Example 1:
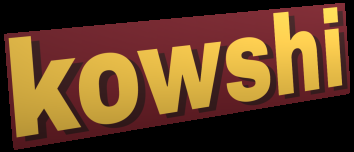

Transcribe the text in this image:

kowshi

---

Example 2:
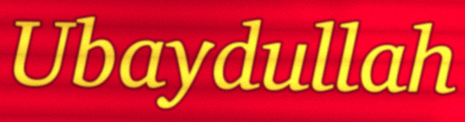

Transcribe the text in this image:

Ubaydullah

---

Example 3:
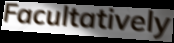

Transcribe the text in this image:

Facultatively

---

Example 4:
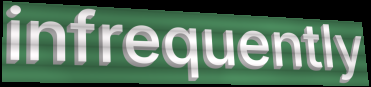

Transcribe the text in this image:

infrequently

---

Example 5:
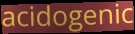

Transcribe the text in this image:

acidogenic